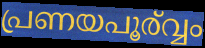
പ്രണയപൂര്വ്വം